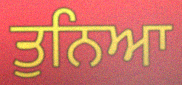
ਤੁਨਿਆ